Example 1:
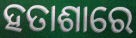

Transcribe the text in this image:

ହତାଶାରେ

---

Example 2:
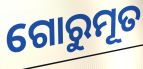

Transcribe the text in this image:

ଗୋରୁମୂତ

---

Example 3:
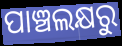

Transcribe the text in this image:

ପାଞ୍ଚଲକ୍ଷରୁ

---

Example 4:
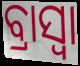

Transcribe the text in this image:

ବ୍ରାସ୍ବା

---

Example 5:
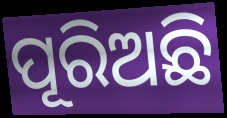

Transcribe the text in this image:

ପୂରିଅଛି